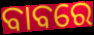
ବାବରେ